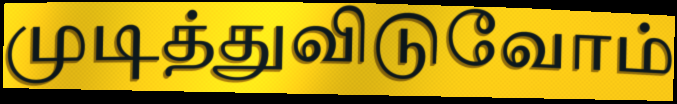
முடித்துவிடுவோம்